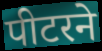
पीटरने